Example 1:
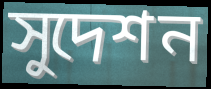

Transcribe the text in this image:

সুদেশন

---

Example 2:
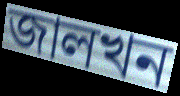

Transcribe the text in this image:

জালখন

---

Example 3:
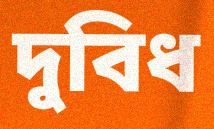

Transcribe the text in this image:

দুবিধ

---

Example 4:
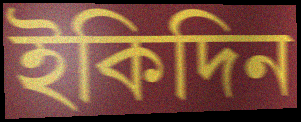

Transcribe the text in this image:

ইকিদিন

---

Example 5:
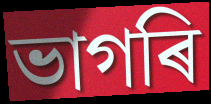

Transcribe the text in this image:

ভাগৰি